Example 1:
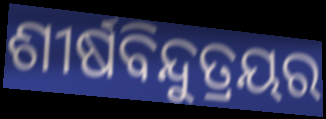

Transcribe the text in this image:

ଶୀର୍ଷବିନ୍ଦୁତ୍ରୟର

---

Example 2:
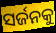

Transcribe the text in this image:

ସର୍ଜନକୁ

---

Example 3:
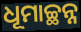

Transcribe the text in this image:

ଧୂମାଚ୍ଛନ୍ନ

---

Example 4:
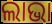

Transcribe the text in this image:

ଲାଭା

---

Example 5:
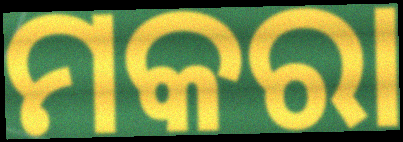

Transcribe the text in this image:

ମକରା